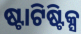
ଷ୍ଟାଟିଷ୍ଟିକ୍ସ